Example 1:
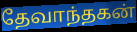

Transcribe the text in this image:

தேவாந்தகன்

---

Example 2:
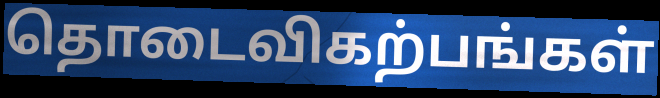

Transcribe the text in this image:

தொடைவிகற்பங்கள்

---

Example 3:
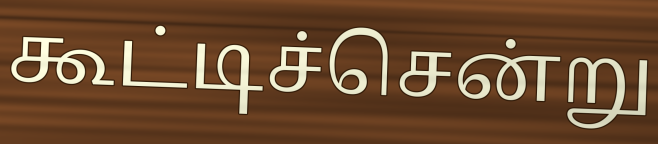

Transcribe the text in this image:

கூட்டிச்சென்று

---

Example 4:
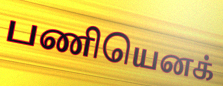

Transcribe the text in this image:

பணியெனக்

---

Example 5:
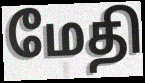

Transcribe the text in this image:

மேதி